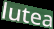
lutea